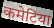
कमेटिया